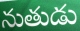
నుతుడు